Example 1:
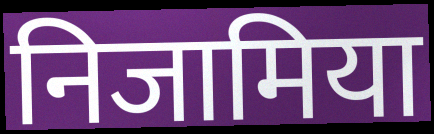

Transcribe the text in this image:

निजामिया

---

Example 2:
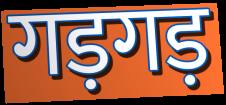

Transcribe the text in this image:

गड़गड़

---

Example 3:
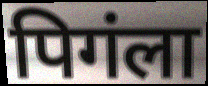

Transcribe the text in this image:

पिगंला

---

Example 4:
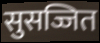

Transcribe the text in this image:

सुसज्जित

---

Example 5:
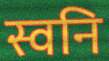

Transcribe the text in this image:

स्वनि